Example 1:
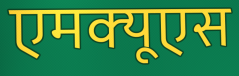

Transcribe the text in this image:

एमक्यूएस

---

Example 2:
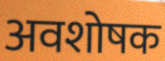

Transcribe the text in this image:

अवशोषक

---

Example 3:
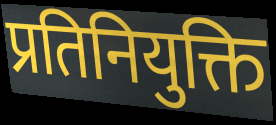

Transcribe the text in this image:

प्रतिनियुक्ति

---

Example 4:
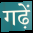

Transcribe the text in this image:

गढ़ें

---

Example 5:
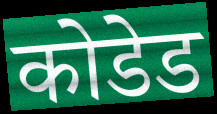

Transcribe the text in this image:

कोडेड